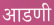
आडणी